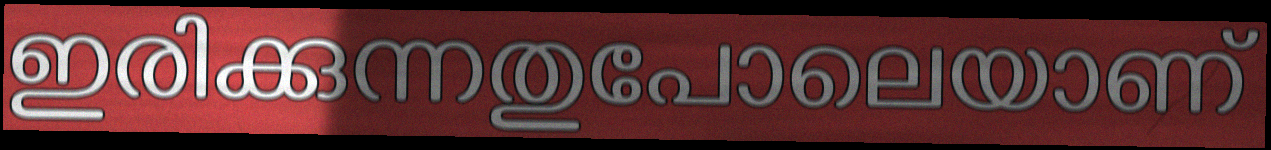
ഇരിക്കുന്നതുപോലെയാണ്